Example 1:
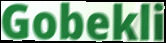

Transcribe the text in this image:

Gobekli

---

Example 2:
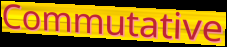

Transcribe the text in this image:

Commutative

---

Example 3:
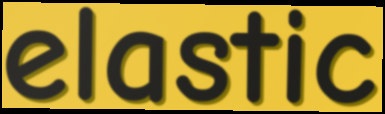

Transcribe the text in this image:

elastic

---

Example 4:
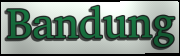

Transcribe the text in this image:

Bandung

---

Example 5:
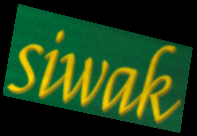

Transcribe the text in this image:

siwak